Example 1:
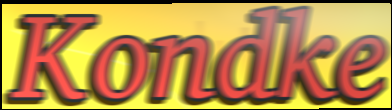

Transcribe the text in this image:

Kondke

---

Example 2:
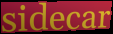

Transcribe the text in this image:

sidecar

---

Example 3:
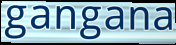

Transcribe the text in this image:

gangana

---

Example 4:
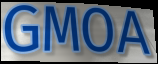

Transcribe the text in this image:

GMOA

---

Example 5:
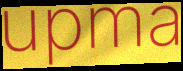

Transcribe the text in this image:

upma